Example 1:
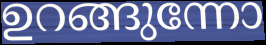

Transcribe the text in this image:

ഉറങ്ങുന്നോ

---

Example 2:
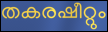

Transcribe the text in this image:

തകരഷീറ്റും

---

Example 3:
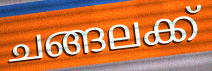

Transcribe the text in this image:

ചങ്ങലക്ക്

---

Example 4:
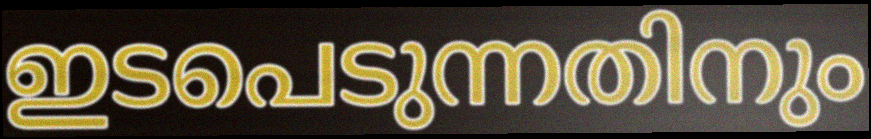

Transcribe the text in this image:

ഇടപെടുന്നതിനും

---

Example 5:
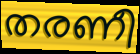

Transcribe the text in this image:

തരണീ